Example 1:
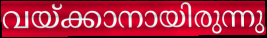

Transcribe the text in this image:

വയ്ക്കാനായിരുന്നു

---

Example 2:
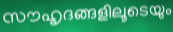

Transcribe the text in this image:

സൗഹൃദങ്ങളിലൂടെയും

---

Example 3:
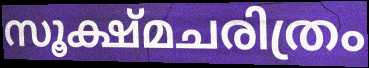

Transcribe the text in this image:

സൂക്ഷ്മചരിത്രം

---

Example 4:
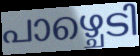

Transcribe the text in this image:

പാഴ്ചെടി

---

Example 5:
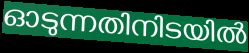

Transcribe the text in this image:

ഓടുന്നതിനിടയിൽ